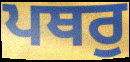
ਪਥਰੁ